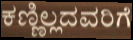
ಕಣ್ಣಿಲ್ಲದವರಿಗೆ